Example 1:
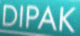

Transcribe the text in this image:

DIPAK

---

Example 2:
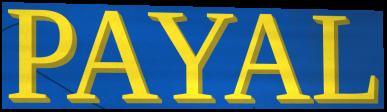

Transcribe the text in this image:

PAYAL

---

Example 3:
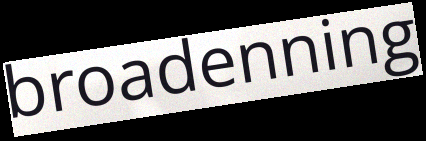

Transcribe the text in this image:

broadenning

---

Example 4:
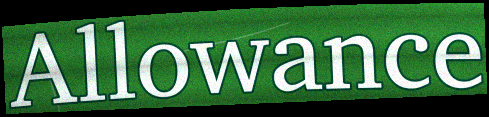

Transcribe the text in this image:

Allowance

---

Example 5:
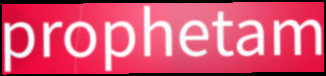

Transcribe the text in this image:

prophetam